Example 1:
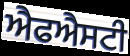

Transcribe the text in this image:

ਐਫਐਸਟੀ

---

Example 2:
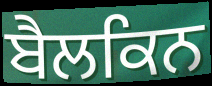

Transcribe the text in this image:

ਬੈਲਕਿਨ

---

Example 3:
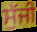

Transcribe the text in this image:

ਸੁੱਜੀ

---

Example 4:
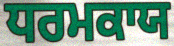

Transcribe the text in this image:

ਧਰਮਕਾਯ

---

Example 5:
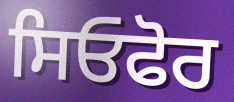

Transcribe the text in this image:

ਸਿਓਫੋਰ